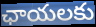
ఛాయలకు